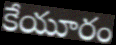
కేయూరం